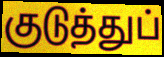
குடுத்துப்